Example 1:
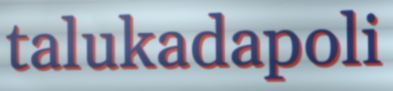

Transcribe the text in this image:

talukadapoli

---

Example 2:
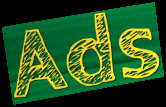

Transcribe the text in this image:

Ads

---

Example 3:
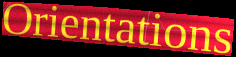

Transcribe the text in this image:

Orientations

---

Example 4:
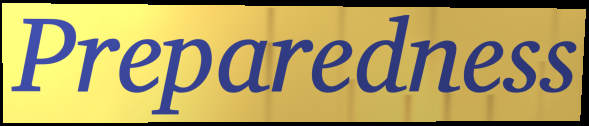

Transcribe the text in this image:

Preparedness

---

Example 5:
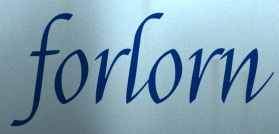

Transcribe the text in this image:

forlorn